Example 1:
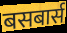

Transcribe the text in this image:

बसबार्स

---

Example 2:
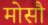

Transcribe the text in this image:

मोसौ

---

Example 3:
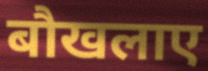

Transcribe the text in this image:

बौखलाए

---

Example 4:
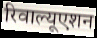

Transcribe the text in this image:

रिवाल्यूएशन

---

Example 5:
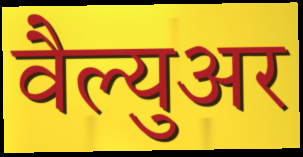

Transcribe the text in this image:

वैल्युअर